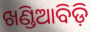
ଖଣ୍ଡିଆବିଡ଼ି